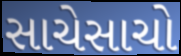
સાચેસાચો